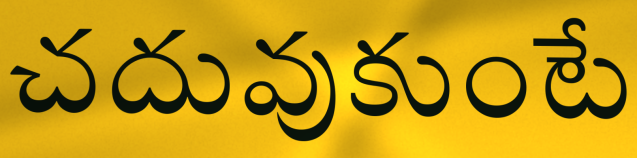
చదువుకుంటే